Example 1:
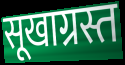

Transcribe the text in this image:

सूखाग्रस्त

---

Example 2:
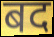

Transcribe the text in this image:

बद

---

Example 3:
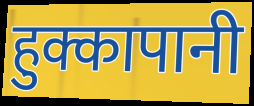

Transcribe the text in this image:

हुक्कापानी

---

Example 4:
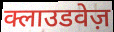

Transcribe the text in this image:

क्लाउडवेज़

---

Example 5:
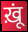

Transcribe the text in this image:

ख़ूं